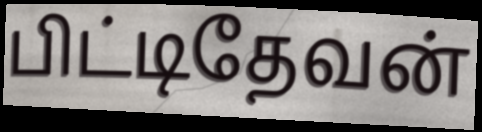
பிட்டிதேவன்